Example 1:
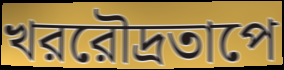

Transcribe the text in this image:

খররৌদ্রতাপে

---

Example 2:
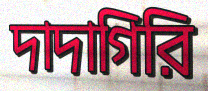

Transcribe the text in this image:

দাদাগিরি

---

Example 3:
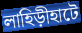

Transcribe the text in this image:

লাহিড়ীহাটে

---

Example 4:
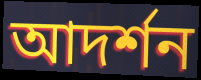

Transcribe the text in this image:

আদর্শন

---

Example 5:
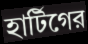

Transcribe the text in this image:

হার্টিগের